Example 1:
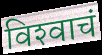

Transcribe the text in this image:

विश्वाचं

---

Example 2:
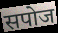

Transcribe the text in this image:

सपोज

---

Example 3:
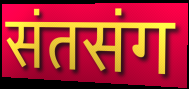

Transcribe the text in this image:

संतसंग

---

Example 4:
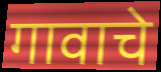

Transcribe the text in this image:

गावाचे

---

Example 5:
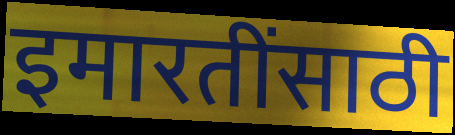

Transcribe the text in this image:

इमारतींसाठी